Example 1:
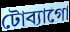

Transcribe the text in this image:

টোব্যাগো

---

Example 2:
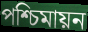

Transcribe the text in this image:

পশ্চিমায়ন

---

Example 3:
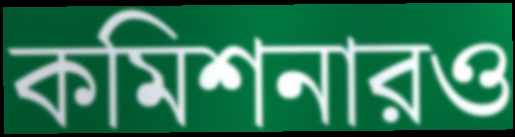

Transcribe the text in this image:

কমিশনারও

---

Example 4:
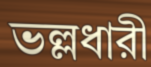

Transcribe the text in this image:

ভল্লধারী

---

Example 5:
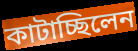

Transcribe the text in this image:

কাটাচ্ছিলেন